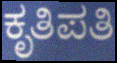
ಕೃತಿಪತಿ